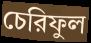
চেরিফুল